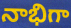
నాభిగా